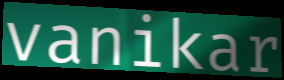
vanikar